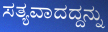
ಸತ್ಯವಾದದ್ದನ್ನು